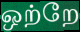
ஒற்றே